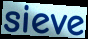
sieve